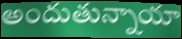
అందుతున్నాయా